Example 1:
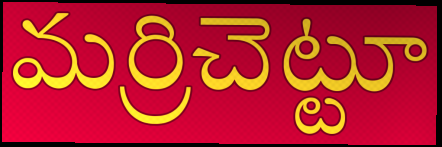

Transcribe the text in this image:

మర్రిచెట్టూ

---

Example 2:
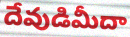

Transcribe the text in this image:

దేవుడిమీదా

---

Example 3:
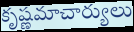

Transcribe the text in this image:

కృష్ణమాచార్యులు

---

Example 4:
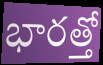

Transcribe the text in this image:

భారత్తో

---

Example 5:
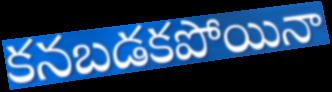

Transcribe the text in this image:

కనబడకపోయినా